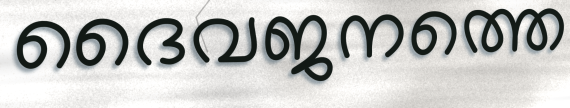
ദൈവജനത്തെ